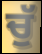
ਚੁੱ